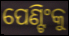
ପେଣ୍ଟିଂକୁ